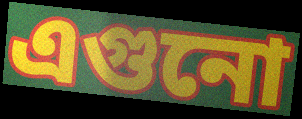
এগুনো